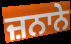
ਜ਼ਨਾਨੇ